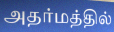
அதர்மத்தில்